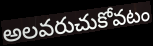
అలవరుచుకోవటం